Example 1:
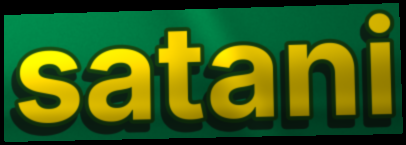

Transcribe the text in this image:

satani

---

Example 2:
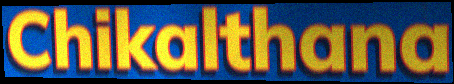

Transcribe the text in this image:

Chikalthana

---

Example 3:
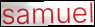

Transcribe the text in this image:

samuel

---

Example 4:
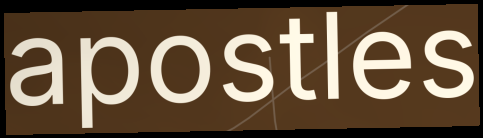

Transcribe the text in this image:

apostles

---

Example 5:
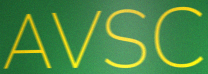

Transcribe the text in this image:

AVSC